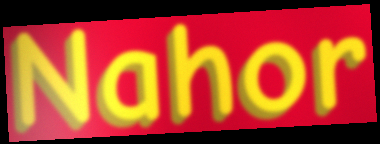
Nahor